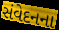
સંવેદનના